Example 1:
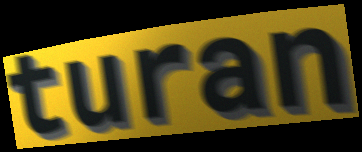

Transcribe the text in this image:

turan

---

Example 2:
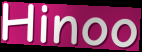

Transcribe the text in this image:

Hinoo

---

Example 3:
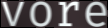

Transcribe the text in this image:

vore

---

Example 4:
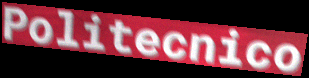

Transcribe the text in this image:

Politecnico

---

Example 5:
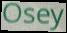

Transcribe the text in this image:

Osey